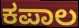
ಕಪಾಲ